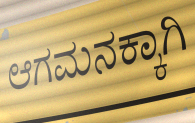
ಆಗಮನಕ್ಕಾಗಿ